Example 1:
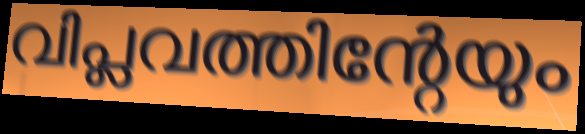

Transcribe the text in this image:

വിപ്ലവത്തിന്റേയും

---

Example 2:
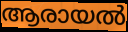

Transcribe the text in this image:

ആരായൽ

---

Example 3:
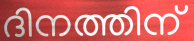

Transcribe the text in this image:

ദിനത്തിന്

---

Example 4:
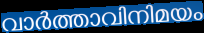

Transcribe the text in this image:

വാർത്താവിനിമയം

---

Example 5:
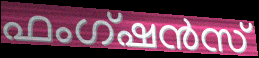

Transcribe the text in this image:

ഫംഗ്ഷൻസ്